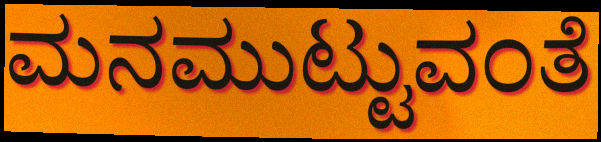
ಮನಮುಟ್ಟುವಂತೆ